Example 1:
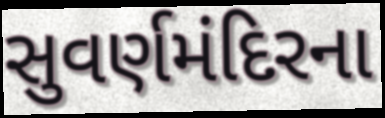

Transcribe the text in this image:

સુવર્ણમંદિરના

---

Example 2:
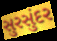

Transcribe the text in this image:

સુરસુંદર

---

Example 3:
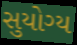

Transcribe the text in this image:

સુયોગ્ય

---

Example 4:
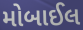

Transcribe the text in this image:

મોબાઈલ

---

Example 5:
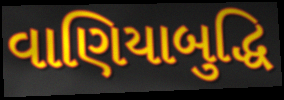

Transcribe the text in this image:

વાણિયાબુદ્ધિ